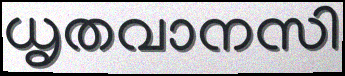
ധൃതവാനസി